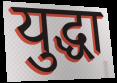
युद्धा